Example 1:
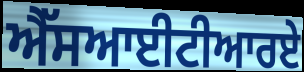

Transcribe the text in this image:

ਐੱਸਆਈਟੀਆਰਏ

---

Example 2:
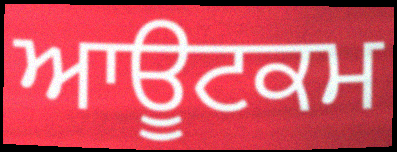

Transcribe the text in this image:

ਆਊਟਕਮ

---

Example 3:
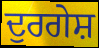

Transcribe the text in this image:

ਦੁਰਗੇਸ਼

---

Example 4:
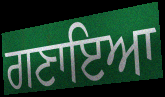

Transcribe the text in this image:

ਗਣਾਇਆ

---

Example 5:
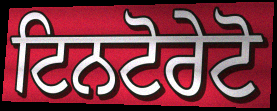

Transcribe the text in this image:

ਟਿਨਟੋਰੇਟੋ